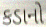
કડાનો